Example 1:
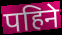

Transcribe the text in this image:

पहिने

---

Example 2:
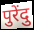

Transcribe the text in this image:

पुरेंदु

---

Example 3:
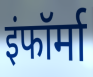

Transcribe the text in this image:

इंफॉर्मा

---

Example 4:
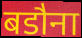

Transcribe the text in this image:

बडौना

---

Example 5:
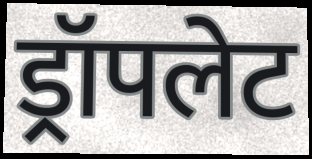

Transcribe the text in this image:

ड्रॉपलेट